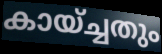
കായ്ച്ചതും